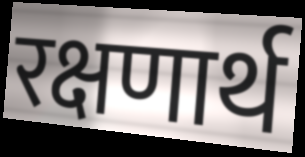
रक्षणार्थ